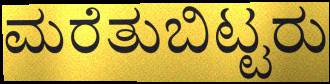
ಮರೆತುಬಿಟ್ಟರು